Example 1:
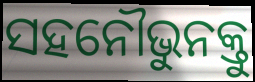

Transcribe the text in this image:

ସହନୌଭୁନକ୍ତୁ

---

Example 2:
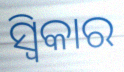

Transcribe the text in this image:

ସ୍ୱିକାର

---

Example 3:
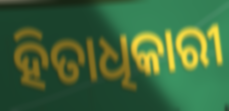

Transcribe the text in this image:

ହିତାଧିକାରୀ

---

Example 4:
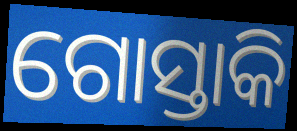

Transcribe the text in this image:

ଗୋସ୍ତାକି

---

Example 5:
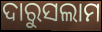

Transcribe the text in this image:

ଦାରୁସଲାମ